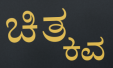
ಚಿತ್ಕ್ವ